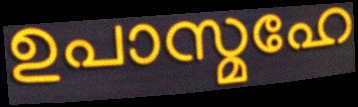
ഉപാസ്മഹേ